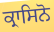
ਕ੍ਰਾਸਿਨੋ